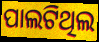
ପାଲଟିଥିଲ